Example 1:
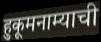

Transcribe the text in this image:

हुकूमनाम्याची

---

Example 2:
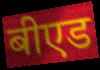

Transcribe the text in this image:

बीएड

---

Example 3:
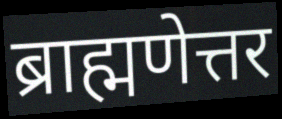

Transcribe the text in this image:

ब्राह्मणेत्तर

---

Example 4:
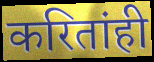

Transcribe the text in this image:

करितांही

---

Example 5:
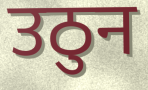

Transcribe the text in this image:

उठुन